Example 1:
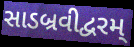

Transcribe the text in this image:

સાડબ્રવીદ્વરમ્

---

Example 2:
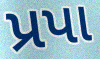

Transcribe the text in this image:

પ્રપા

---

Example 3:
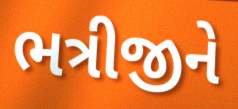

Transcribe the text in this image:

ભત્રીજીને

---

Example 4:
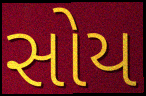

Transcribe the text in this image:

સોય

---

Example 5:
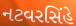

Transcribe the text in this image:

નટવરસિંહે